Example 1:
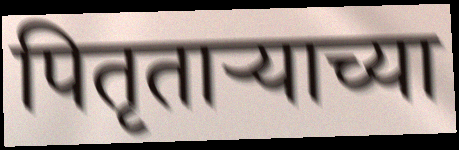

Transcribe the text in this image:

पितृताऱ्याच्या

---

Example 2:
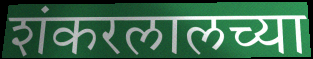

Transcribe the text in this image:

शंकरलालच्या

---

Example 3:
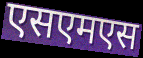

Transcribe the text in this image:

एसएमएस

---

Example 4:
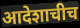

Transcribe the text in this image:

आदेशाचीच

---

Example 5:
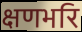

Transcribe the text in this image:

क्षणभरि